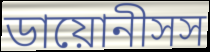
ডায়োনীসস